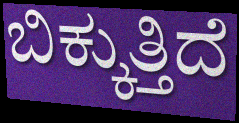
ಬಿಕ್ಕುತ್ತಿದೆ